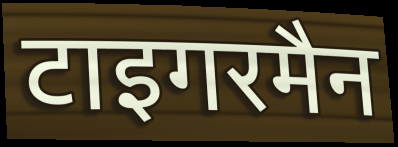
टाइगरमैन